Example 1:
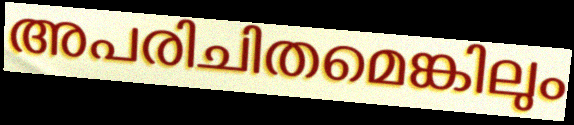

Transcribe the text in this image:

അപരിചിതമെങ്കിലും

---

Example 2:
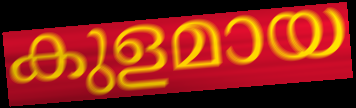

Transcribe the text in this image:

കുളമായ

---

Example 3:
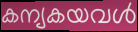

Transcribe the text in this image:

കന്യകയവൾ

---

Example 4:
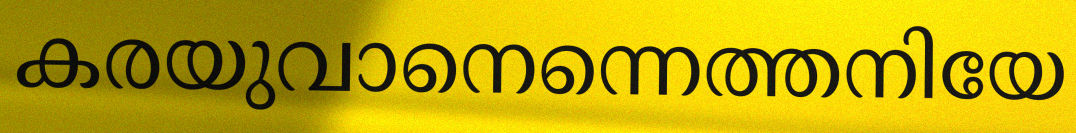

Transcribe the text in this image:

കരയുവാനെന്നെത്തനിയേ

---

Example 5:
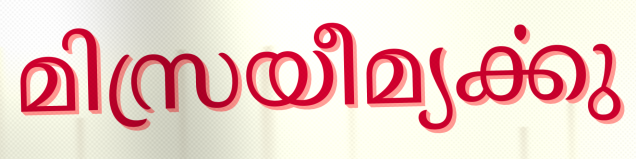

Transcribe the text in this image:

മിസ്രയീമ്യൎക്കു